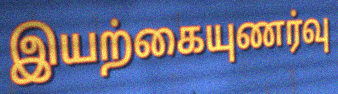
இயற்கையுணர்வு